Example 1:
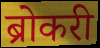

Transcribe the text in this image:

ब्रोकरी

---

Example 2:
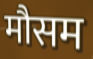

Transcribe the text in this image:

मौसम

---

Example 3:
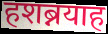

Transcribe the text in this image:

हशब्नयाह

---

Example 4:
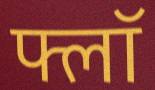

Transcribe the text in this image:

फ्लॉ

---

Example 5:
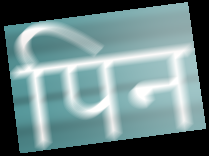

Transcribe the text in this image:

पिन